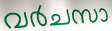
വർചസാ